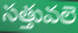
సత్తువలె